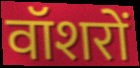
वॉशरों